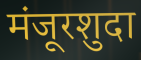
मंजूरशुदा